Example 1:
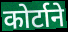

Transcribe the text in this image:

कोर्टाने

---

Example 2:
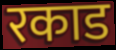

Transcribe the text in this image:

रकाड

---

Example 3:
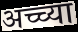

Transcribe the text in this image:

अच्च्या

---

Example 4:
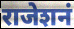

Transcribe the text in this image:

राजेशनं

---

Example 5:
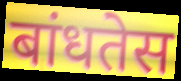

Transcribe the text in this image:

बांधतेस